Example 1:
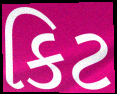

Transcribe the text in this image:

કિટ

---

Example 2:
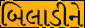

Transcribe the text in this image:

બિલાડીને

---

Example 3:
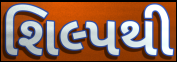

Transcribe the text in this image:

શિલ્પથી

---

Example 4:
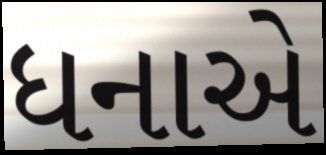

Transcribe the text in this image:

ધનાએ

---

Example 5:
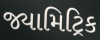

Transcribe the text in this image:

જ્યામિટ્રિક